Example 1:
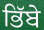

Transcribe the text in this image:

ਭਿੱਬੇ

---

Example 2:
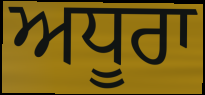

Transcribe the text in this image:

ਅਧੂਰਾ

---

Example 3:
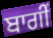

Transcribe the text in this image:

ਬਾਗੀਂ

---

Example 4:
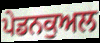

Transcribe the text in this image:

ਪੇਡਨਕੁਅਲ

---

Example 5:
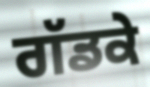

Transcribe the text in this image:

ਗੱਡਕੇ